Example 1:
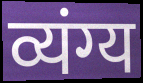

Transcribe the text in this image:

व्‍यंग्‍य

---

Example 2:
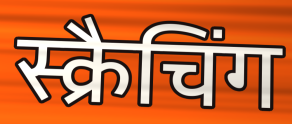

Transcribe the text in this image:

स्क्रैचिंग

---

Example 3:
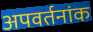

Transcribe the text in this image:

अपवर्तनांक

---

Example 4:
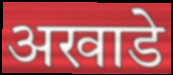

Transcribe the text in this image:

अखाडे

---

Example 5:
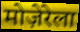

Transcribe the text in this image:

मोज़ेरेला